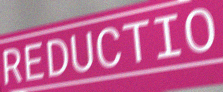
REDUCTIO